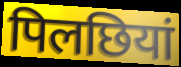
पिलछियां